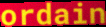
ordain